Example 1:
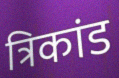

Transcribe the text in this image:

त्रिकांड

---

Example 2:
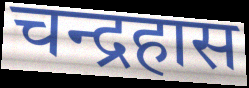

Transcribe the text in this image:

चन्द्रहास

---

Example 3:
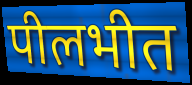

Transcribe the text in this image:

पीलभीत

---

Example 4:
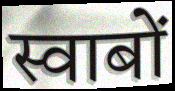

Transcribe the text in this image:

स्वाबों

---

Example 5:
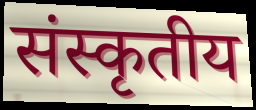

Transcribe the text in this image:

संस्कृतीय